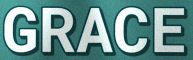
GRACE